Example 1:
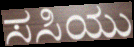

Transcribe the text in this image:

ಸಸಿಯು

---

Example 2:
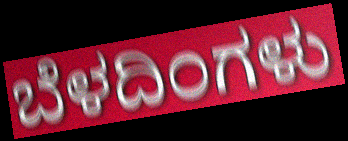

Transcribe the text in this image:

ಬೆಳದಿಂಗಳು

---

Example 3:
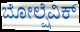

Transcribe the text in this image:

ಬೋಲ್ಷೆವಿಕ್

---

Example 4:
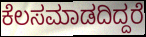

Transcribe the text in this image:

ಕೆಲಸಮಾಡದಿದ್ದರೆ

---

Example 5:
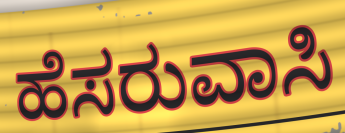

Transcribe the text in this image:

ಹೆಸರುವಾಸಿ